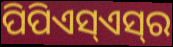
ପିପିଏସ୍ଏସ୍‌ର